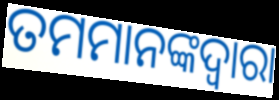
ତମମାନଙ୍କଦ୍ଵାରା